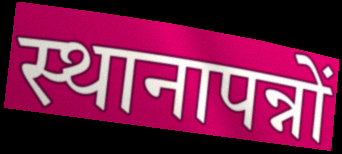
स्थानापन्नों